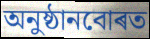
অনুষ্ঠানবোৰত